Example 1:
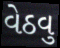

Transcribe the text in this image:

વેઠવુ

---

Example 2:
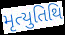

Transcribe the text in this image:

મૃત્યુતિથિ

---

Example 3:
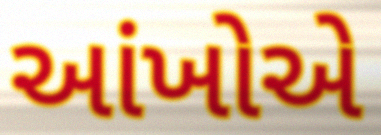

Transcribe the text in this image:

આંખોએ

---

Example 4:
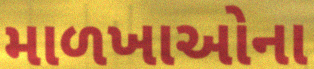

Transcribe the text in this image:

માળખાઓના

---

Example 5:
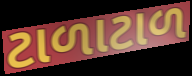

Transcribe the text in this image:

ટાળાટાળ